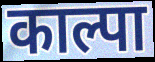
काल्पा